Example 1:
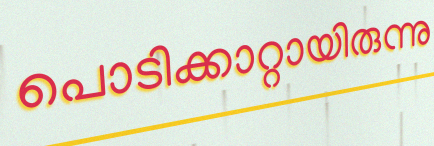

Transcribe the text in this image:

പൊടിക്കാറ്റായിരുന്നു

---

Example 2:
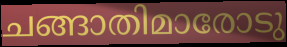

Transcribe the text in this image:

ചങ്ങാതിമാരോടു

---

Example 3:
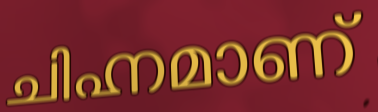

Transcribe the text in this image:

ചിഹ്നമാണ്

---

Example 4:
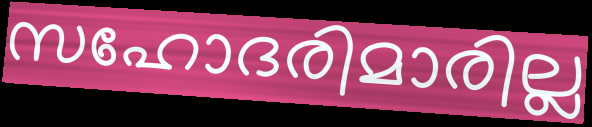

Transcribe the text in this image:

സഹോദരിമാരില്ല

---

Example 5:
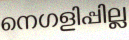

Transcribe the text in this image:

നെഗളിപ്പില്ല